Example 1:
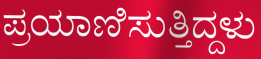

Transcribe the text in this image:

ಪ್ರಯಾಣಿಸುತ್ತಿದ್ದಳು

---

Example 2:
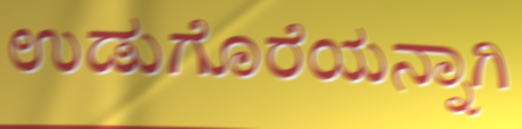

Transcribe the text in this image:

ಉಡುಗೊರೆಯನ್ನಾಗಿ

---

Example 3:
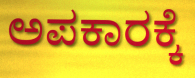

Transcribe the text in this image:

ಅಪಕಾರಕ್ಕೆ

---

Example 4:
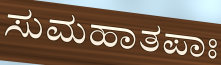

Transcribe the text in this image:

ಸುಮಹಾತಪಾಃ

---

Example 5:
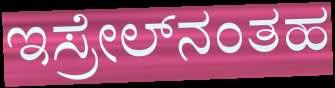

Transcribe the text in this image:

ಇಸ್ರೇಲ್‌ನಂತಹ